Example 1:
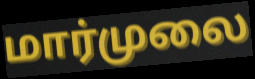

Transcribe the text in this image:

மார்முலை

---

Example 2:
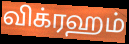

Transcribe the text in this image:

விக்ரஹம்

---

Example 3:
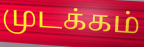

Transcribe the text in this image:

முடக்கம்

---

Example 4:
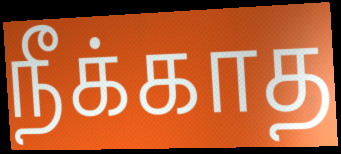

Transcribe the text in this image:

நீக்காத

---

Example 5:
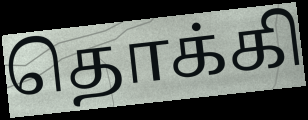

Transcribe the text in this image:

தொக்கி